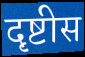
दृष्टीस